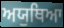
ਅਯੁਥਿਆ